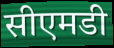
सीएमडी